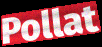
Pollat